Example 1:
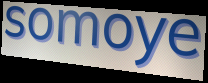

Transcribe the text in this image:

somoye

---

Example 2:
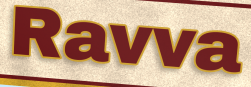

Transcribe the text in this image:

Ravva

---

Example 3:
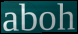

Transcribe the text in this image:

aboh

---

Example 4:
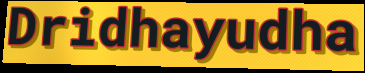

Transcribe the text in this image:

Dridhayudha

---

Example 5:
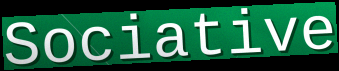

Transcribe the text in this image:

Sociative